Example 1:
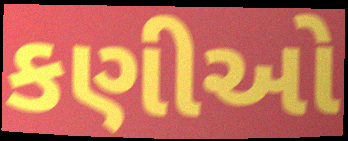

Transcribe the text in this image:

કણીઓ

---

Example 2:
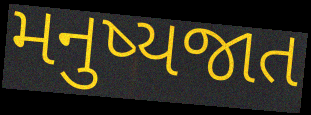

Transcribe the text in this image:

મનુષ્યજાત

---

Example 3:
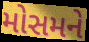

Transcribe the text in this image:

મોસમને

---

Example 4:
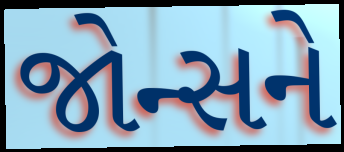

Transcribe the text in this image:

જોન્સને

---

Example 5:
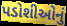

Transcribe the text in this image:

પડોશીઓનું